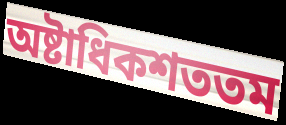
অষ্টাধিকশততম